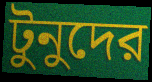
টুনুদের